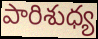
పారిశుధ్య